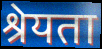
श्रेयता